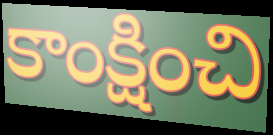
కాంక్షించి